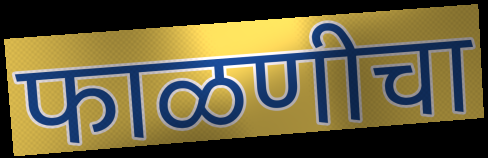
फाळणीचा